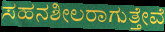
ಸಹನಶೀಲರಾಗುತ್ತೇವೆ